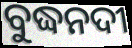
ବୁଦ୍ଧନଦୀ